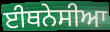
ਈਥਨੇਸੀਆ